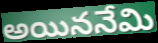
అయిననేమి